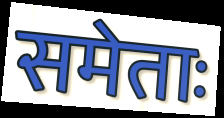
समेताः